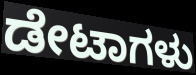
ಡೇಟಾಗಳು